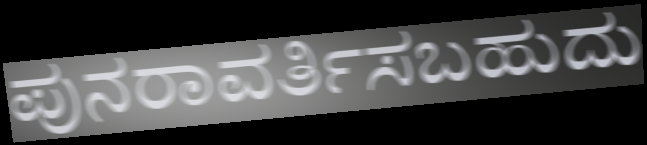
ಪುನರಾವರ್ತಿಸಬಹುದು